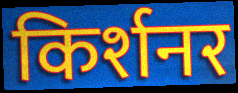
किर्शनर